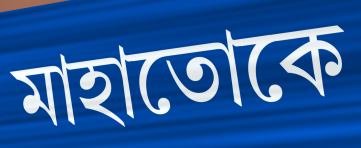
মাহাতোকে